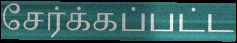
சேர்க்கப்பட்ட